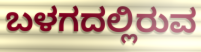
ಬಳಗದಲ್ಲಿರುವ